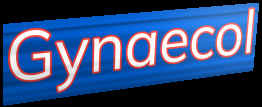
Gynaecol